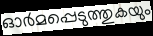
ഓർമപ്പെടുത്തുകയും